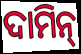
ଦାମିନ୍